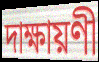
দাক্ষায়ণী